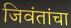
जिवंतांचा